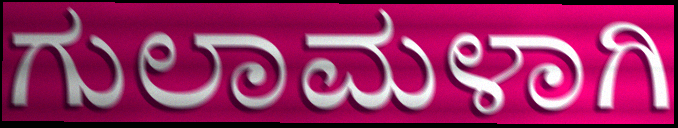
ಗುಲಾಮಳಾಗಿ